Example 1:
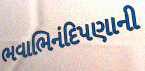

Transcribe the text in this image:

ભવાભિનંદિપણાની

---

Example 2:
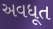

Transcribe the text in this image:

અવધૂત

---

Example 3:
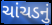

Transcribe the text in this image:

ચાંચડનું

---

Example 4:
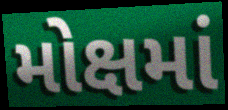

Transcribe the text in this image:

મોક્ષમાં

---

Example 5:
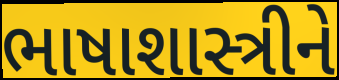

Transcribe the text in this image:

ભાષાશાસ્ત્રીને